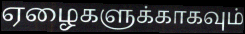
ஏழைகளுக்காகவும்